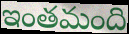
ఇంతమంది